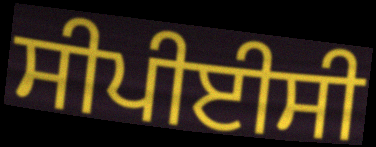
ਸੀਪੀਈਸੀ